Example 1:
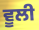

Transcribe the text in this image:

ਵੂਲੀ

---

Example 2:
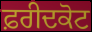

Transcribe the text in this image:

ਫ਼ਰੀਦਕੋਟ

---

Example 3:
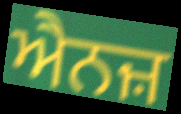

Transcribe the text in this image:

ਐਨਜ਼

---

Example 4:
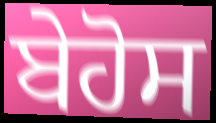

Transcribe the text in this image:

ਬੇਹੋਸ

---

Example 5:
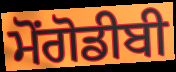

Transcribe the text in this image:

ਮੋਂਗੋਡੀਬੀ